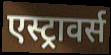
एस्ट्रावर्स